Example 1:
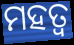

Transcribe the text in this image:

ମହତ୍ବ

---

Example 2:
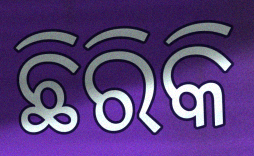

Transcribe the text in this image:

ଛିରିକି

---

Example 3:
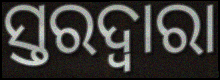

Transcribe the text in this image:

ସ୍ତରଦ୍ୱାରା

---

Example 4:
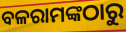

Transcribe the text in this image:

ବଳରାମଙ୍କଠାରୁ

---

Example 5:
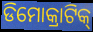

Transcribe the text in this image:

ଡିମୋକ୍ରାଟିକ୍